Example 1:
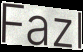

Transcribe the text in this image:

Fazl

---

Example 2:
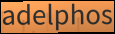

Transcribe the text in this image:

adelphos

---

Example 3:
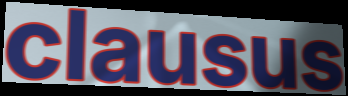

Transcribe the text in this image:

clausus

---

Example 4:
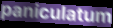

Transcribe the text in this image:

paniculatum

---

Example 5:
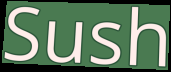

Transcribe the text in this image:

Sush